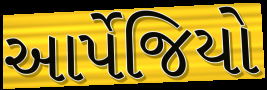
આર્પેજિયો